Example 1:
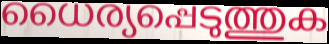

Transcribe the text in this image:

ധൈര്യപ്പെടുത്തുക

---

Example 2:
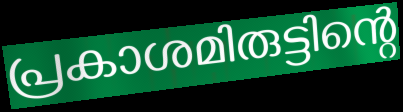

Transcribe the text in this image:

പ്രകാശമിരുട്ടിന്റെ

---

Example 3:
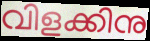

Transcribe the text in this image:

വിളക്കിനു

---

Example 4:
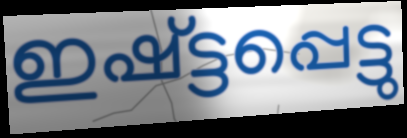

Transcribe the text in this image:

ഇഷ്ട്ടപ്പെട്ടു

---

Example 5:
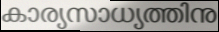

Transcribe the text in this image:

കാര്യസാധ്യത്തിനു